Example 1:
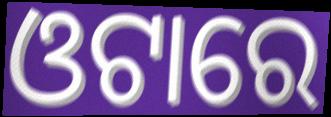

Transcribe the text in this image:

ଓଟାରେ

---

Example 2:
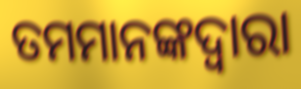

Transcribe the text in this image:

ତମମାନଙ୍କଦ୍ଵାରା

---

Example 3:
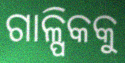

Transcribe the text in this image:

ଗାଳ୍ପିକକୁ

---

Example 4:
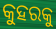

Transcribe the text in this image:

କୁହରକୁ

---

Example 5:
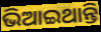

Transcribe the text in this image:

ଭିଆଇଥାନ୍ତି